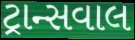
ટ્રાન્સવાલ